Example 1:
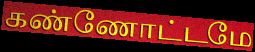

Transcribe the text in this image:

கண்ணோட்டமே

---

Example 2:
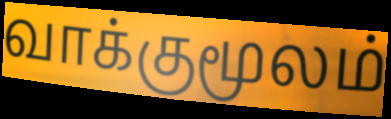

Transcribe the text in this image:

வாக்குமூலம்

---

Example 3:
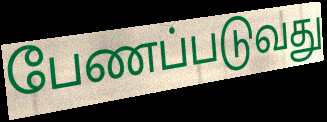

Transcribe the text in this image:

பேணப்படுவது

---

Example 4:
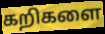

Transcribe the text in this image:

கறிகளை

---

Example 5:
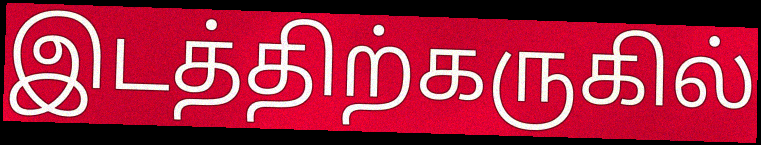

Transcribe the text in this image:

இடத்திற்கருகில்